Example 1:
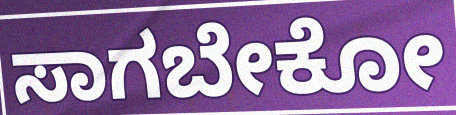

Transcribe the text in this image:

ಸಾಗಬೇಕೋ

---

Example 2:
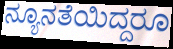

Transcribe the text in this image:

ನ್ಯೂನತೆಯಿದ್ದರೂ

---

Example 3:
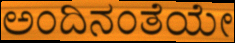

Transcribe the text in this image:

ಅಂದಿನಂತೆಯೇ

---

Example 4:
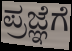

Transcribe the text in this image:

ಪ್ರಜ್ಞೆಗೆ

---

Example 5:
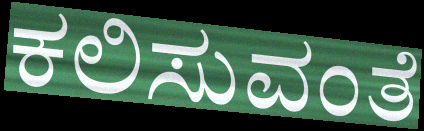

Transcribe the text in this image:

ಕಲಿಸುವಂತೆ